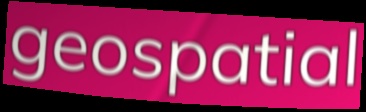
geospatial